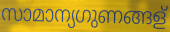
സാമാന്യഗുണങ്ങള്